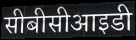
सीबीसीआइडी